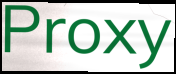
Proxy